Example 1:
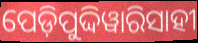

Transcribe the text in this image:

ପେଡ଼ିପୁଦ୍ଦିୱାରିସାହୀ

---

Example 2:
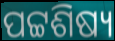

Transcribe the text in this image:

ପଟ୍ଟଶିଷ୍ୟ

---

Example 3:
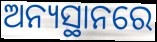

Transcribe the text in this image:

ଅନ୍ୟସ୍ଥାନରେ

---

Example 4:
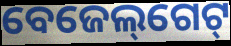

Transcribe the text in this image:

ବେଜେଲ୍‌ଗେଟ୍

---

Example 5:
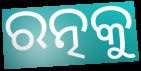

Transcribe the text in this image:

ରତ୍ନକୁ